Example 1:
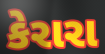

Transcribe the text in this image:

કેરારા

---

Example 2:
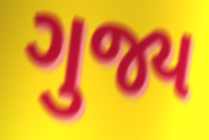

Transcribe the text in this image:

ગુજ્ય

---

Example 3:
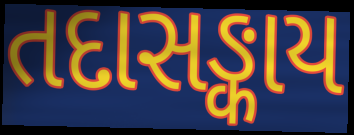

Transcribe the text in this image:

તદાસઙ્કાય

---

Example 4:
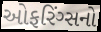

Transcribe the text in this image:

ઓફરિંગ્સનો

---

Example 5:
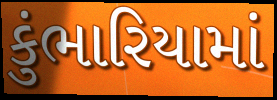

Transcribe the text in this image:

કુંભારિયામાં